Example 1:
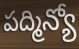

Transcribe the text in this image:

పద్మిన్యో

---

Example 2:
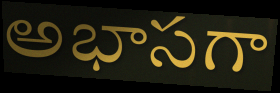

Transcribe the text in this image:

అభాసగా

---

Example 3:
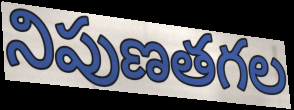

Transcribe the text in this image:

నిపుణతగల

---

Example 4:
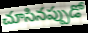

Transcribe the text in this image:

చూసినప్పుడో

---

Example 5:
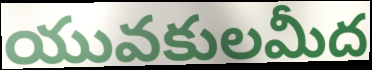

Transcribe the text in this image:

యువకులమీద